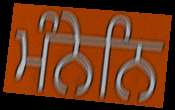
ਮੰਨੇਨਿ